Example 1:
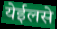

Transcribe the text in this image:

येईलसे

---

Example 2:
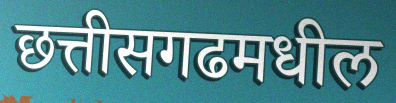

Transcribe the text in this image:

छत्तीसगढमधील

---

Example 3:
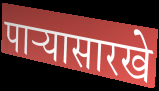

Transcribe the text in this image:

पाऱ्यासारखे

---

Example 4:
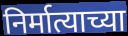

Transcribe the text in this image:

निर्मात्याच्या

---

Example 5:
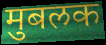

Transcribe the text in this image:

मुबलक